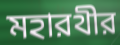
মহারথীর